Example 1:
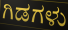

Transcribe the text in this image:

ಗಿಡಗಳು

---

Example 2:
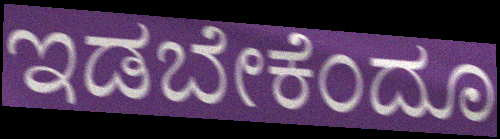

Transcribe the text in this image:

ಇಡಬೇಕೆಂದೂ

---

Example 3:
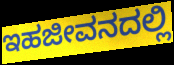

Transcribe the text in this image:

ಇಹಜೀವನದಲ್ಲಿ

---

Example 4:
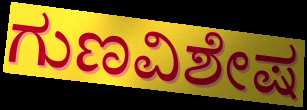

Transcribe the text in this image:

ಗುಣವಿಶೇಷ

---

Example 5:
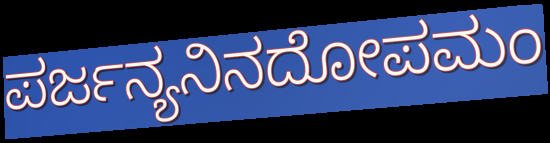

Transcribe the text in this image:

ಪರ್ಜನ್ಯನಿನದೋಪಮಂ